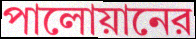
পালোয়ানের